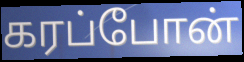
கரப்போன்